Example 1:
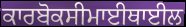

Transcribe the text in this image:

ਕਾਰਬੋਕਸੀਮਾਈਥਾਈਲ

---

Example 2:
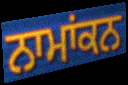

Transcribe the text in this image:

ਨਾਮਾਂਕਨ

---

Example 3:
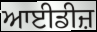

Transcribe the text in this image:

ਆਈਡੀਜ਼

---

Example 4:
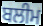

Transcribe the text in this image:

ਬਲੀਮ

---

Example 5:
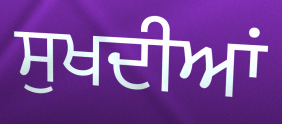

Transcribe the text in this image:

ਸੁਖਦੀਆਂ